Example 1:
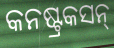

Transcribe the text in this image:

କନଷ୍ଟ୍ରକସନ୍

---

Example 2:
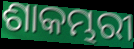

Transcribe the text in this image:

ଶାକମ୍ଭରୀ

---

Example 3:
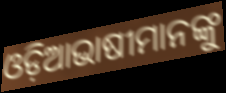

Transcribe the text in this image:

ଓଡ଼ିଆଭାଷୀମାନଙ୍କୁ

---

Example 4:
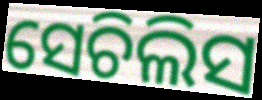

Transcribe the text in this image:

ସେଚିଲିସ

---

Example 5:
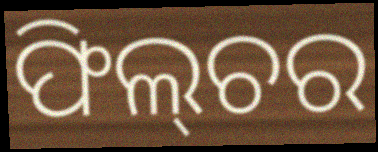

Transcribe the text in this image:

ଫିଲ୍‌ଚର